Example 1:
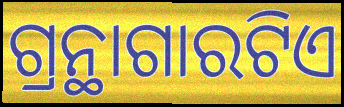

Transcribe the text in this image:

ଗ୍ରନ୍ଥାଗାରଟିଏ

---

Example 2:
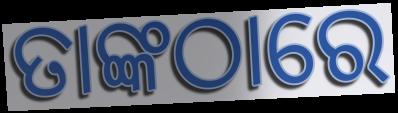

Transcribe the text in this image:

ତାଙ୍କଠାରେ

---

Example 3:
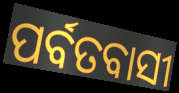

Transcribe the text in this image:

ପର୍ବତବାସୀ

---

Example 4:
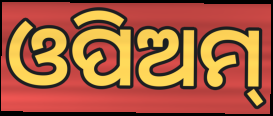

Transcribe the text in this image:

ଓପିଅମ୍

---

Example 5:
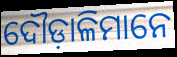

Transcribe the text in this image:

ଦୌଡ଼ାଳିମାନେ